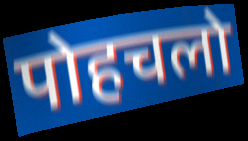
पोहचलो